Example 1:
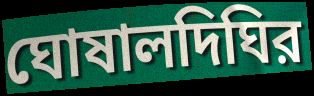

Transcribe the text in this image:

ঘোষালদিঘির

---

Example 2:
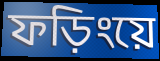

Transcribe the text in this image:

ফড়িংয়ে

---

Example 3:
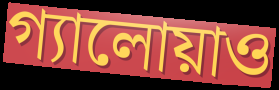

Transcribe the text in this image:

গ্যালোয়াও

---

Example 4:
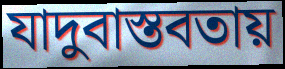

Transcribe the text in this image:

যাদুবাস্তবতায়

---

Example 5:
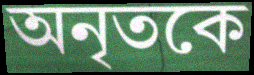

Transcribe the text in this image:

অনৃতকে